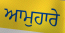
ਆਮੁਹਾਰੇ